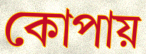
কোপায়